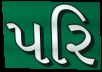
પરિ